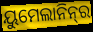
ୟୁମେଲାନିନ୍‌ର